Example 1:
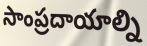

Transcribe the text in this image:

సాంప్రదాయాల్ని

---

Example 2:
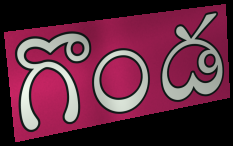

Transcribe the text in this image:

గొండ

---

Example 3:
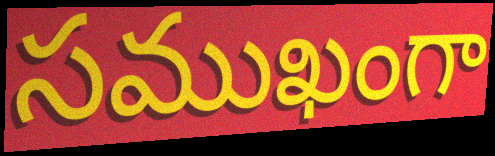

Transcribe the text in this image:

సముఖంగా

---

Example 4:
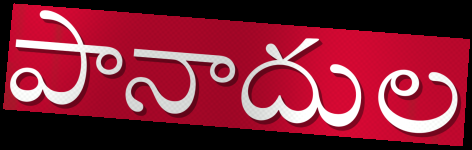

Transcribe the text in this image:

పానాదుల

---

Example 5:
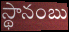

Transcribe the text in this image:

స్థానంబు